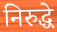
निरुद्धे